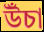
উঁচা